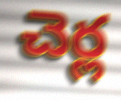
చెర్ల